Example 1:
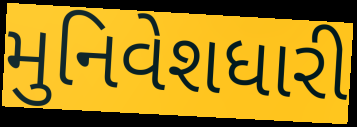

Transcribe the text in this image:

મુનિવેશધારી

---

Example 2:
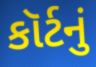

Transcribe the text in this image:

કૉર્ટનું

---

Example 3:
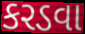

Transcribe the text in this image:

કરડવા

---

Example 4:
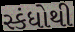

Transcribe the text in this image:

સ્કંધોથી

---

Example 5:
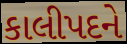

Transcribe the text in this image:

કાલીપદને